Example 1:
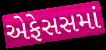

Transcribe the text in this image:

એફેસસમાં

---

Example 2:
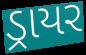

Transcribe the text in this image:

ડ્રાયર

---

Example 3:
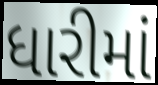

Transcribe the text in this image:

ધારીમાં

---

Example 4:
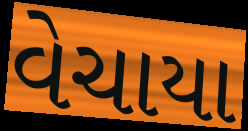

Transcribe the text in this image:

વેચાયા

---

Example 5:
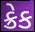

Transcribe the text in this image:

ક્રેક